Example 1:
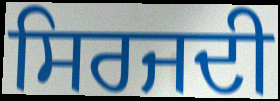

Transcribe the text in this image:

ਸਿਰਜਦੀ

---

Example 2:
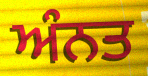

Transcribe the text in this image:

ਅੰਨਤ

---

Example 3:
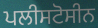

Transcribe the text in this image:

ਪਲੀਸਟੋਸੀਨ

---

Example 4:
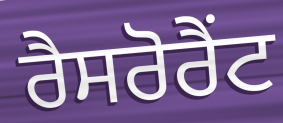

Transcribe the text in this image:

ਰੈਸਰੋਰੈਂਟ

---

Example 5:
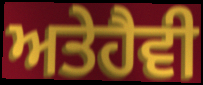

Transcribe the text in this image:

ਅਤੇਹੈਵੀ